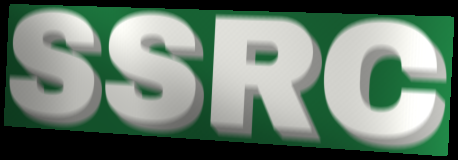
SSRC